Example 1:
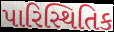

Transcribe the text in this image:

પારિસ્થિતિક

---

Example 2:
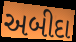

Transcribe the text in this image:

અબીદા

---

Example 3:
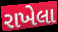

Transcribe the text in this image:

રાખેલા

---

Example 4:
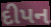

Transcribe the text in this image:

દીપન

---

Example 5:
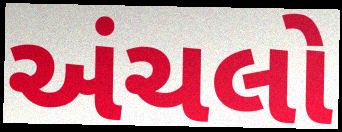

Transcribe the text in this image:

અંચલો